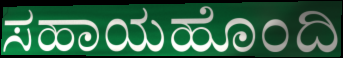
ಸಹಾಯಹೊಂದಿ